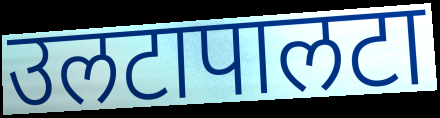
उलटापालटा